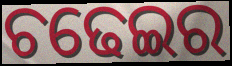
ଚଢେଇର